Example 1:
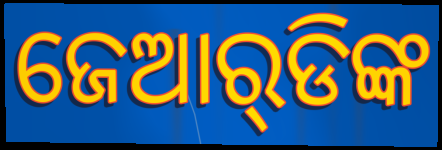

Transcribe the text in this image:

ଜେଆର୍‌ଡିଙ୍କ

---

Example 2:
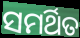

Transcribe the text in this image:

ସମର୍ଥିତ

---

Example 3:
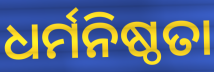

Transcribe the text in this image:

ଧର୍ମନିଷ୍ଠତା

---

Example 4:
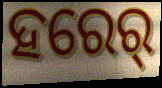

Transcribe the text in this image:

ହରେର୍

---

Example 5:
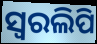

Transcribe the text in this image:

ସ୍ଵରଲିପି